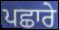
ਪਛਾਰੇ